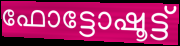
ഫോട്ടോഷൂട്ട്